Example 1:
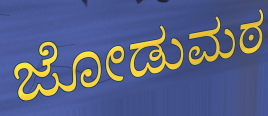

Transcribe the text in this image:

ಜೋಡುಮಠ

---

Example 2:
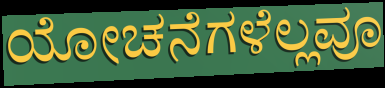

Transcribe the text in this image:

ಯೋಚನೆಗಳೆಲ್ಲವೂ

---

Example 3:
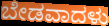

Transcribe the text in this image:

ಬೇಡವಾದಳು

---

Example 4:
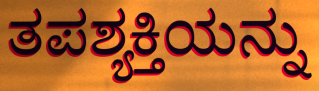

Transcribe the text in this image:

ತಪಶ್ಯಕ್ತಿಯನ್ನು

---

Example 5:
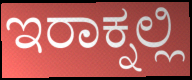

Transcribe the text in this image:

ಇರಾಕ್ನಲ್ಲಿ